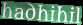
hadhihil